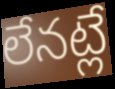
లేనట్లే